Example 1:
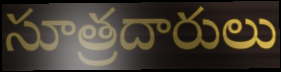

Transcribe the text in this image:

సూత్రదారులు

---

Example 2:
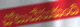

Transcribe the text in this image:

చోటుచేసుకుంది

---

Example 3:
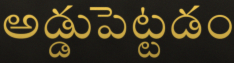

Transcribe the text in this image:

అడ్డుపెట్టడం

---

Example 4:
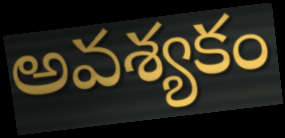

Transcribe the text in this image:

అవశ్యకం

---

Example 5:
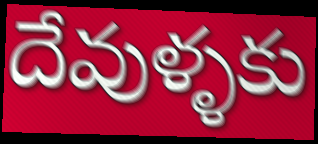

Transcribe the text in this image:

దేవుళ్ళకు